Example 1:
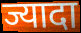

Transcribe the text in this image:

ज्यादा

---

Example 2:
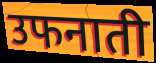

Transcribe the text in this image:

उफनाती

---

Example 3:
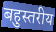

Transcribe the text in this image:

बहुस्तरीय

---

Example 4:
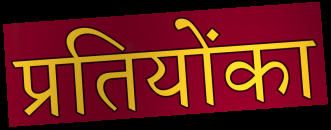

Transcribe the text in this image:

प्रतियोंका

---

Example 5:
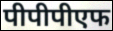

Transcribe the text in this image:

पीपीपीएफ